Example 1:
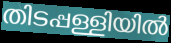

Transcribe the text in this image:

തിടപ്പള്ളിയിൽ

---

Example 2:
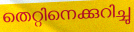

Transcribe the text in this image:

തെറ്റിനെക്കുറിച്ചു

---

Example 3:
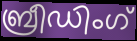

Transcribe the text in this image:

ബ്രീഡിംഗ്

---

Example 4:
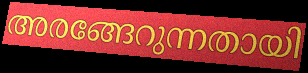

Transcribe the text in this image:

അരങ്ങേറുന്നതായി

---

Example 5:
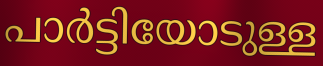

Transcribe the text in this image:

പാർട്ടിയോടുള്ള